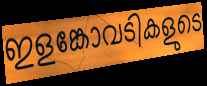
ഇളങ്കോവടികളുടെ